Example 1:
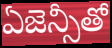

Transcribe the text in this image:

ఏజెన్సీతో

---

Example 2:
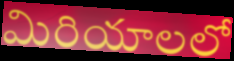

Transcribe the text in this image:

మిరియాలలో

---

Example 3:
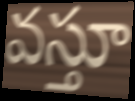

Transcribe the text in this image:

వస్తూ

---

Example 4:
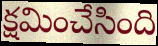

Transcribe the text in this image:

క్షమించేసింది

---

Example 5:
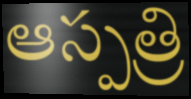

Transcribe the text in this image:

ఆస్పత్రి